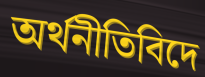
অৰ্থনীতিবিদে